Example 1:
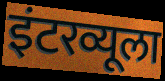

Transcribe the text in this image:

इंटरव्यूला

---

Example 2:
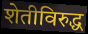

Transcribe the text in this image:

शेतीविरुद्ध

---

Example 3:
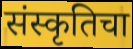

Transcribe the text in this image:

संस्कृतिचा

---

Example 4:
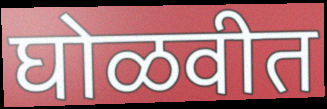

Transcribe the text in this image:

घोळवीत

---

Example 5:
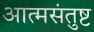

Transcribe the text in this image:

आत्मसंतुष्ट